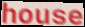
house